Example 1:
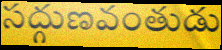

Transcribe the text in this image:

సద్గుణవంతుడు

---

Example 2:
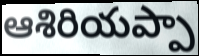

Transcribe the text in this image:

ఆశిరియప్పా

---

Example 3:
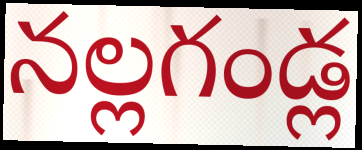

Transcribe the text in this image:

నల్లగండ్ల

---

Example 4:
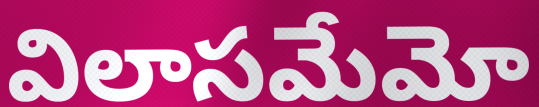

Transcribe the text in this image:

విలాసమేమో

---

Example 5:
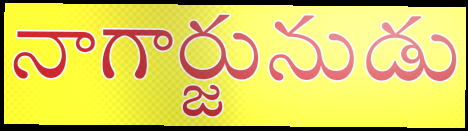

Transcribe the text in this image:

నాగార్జునుడు